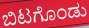
ಬಿಟಗೊಂಡು